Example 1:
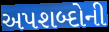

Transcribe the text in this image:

અપશબ્દોની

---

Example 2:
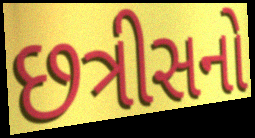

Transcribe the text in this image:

છત્રીસનો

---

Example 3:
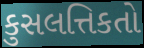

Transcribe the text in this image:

કુસલત્તિકતો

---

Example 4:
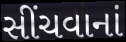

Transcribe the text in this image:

સીંચવાનાં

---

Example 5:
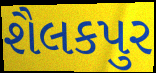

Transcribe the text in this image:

શૈલકપુર